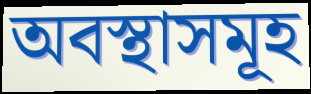
অবস্থাসমূহ